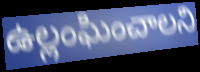
ఉల్లంఘించాలని